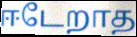
ஈடேறாத